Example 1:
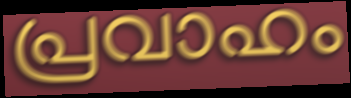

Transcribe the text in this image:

പ്രവാഹം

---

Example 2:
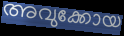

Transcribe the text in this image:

അവുക്കോയ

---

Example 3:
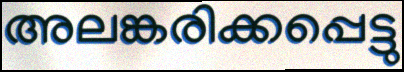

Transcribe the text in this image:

അലങ്കരിക്കപ്പെട്ടു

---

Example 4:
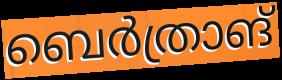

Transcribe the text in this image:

ബെർത്രാങ്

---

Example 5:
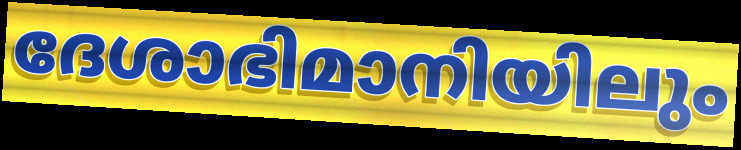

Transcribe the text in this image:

ദേശാഭിമാനിയിലും